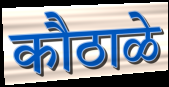
कौठाळे